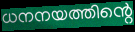
ധനനയത്തിന്റെ